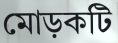
মোড়কটি